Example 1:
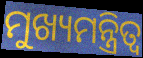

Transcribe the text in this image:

ମୁଖ୍ୟମନ୍ତ୍ରିତ୍ବ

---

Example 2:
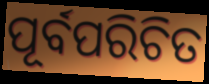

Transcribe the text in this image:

ପୂର୍ବପରିଚିତ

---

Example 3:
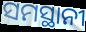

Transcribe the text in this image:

ସମସ୍ଥାନୀ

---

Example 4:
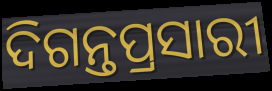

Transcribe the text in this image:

ଦିଗନ୍ତପ୍ରସାରୀ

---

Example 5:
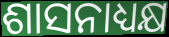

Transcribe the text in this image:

ଶାସନାଧ୍ୟକ୍ଷ